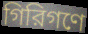
গিরিগণে